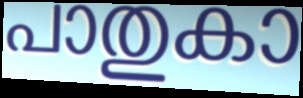
പാതുകാ